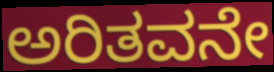
ಅರಿತವನೇ